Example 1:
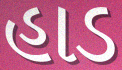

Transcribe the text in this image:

હાડ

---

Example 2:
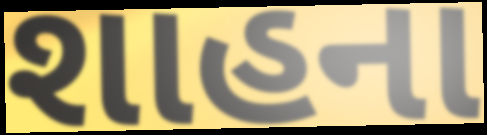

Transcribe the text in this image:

શાહના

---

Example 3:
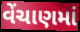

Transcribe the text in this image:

વેંચાણમાં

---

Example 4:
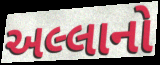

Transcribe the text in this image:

અલ્લાનો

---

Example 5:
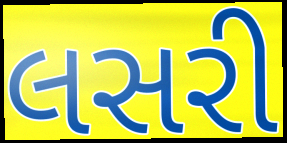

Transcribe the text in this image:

લસરી